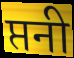
प्तनी